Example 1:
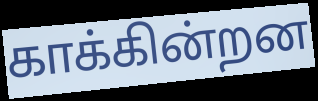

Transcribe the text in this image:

காக்கின்றன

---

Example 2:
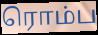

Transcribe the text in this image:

ரொம்ப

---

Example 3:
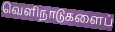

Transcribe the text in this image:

வெளிநாடுகளைப்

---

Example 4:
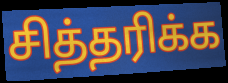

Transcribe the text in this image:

சித்தரிக்க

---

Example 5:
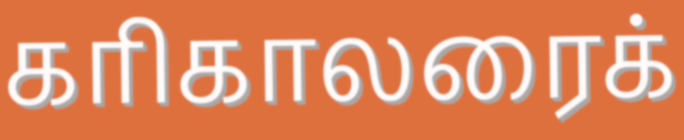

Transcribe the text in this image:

கரிகாலரைக்